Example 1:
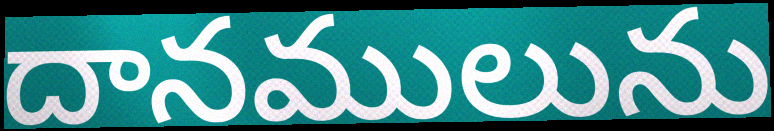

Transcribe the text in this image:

దానములును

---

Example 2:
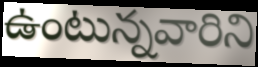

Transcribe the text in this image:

ఉంటున్నవారిని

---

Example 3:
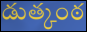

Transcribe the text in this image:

డుత్కంఠ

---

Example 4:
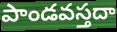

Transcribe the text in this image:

పాండవస్తదా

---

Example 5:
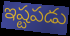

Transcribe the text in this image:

ఇష్టపడు